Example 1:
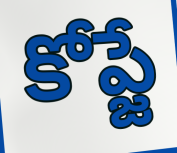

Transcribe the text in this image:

కోప్జే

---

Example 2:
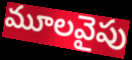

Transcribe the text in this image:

మూలవైపు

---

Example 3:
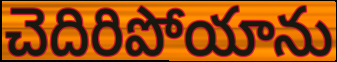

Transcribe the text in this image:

చెదిరిపోయాను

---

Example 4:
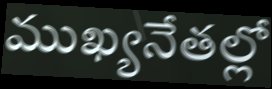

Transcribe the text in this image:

ముఖ్యనేతల్లో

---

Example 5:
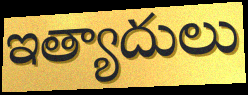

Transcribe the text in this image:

ఇత్యాదులు